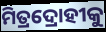
ମିତ୍ରଦ୍ରୋହୀକୁ